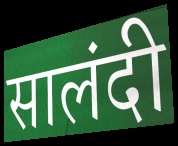
सालंदी